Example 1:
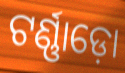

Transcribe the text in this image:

ଟର୍ଣ୍ଣାଡ଼ୋ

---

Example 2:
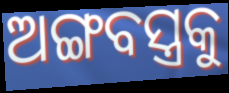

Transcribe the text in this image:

ଅଙ୍ଗବସ୍ତ୍ରକୁ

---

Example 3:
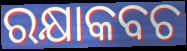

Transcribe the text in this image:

ରକ୍ଷାକବଚ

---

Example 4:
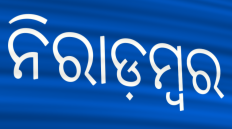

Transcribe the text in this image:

ନିରାଡ଼ମ୍ବର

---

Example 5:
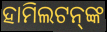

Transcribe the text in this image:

ହାମିଲଟନ୍‍ଙ୍କ